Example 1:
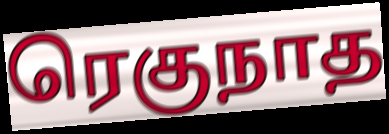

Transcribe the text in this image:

ரெகுநாத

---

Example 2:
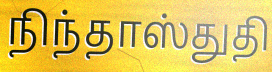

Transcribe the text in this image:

நிந்தாஸ்துதி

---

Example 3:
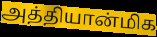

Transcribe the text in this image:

அத்தியான்மிக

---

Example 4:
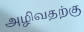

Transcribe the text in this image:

அழிவதற்கு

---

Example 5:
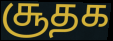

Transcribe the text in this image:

சூதக